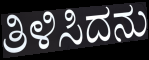
ತಿಳಿಸಿದನು